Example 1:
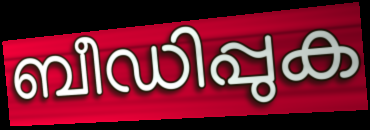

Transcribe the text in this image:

ബീഡിപ്പുക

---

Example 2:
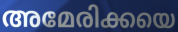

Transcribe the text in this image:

അമേരിക്കയെ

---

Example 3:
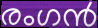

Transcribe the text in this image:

രംഗൻ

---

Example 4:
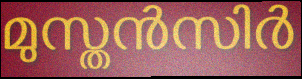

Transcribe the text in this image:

മുസ്തൻസിർ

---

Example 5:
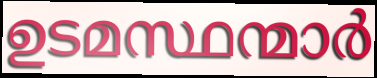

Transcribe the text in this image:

ഉടമസ്ഥന്മാർ